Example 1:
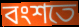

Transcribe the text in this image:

বংশতে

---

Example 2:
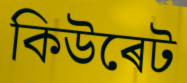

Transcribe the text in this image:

কিউৰেট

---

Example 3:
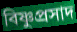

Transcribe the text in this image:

বিষ্ণুপ্ৰসাদ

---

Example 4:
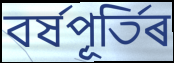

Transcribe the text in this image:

বৰ্ষপূৰ্তিৰ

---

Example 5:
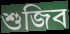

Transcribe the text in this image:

শুজিব